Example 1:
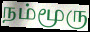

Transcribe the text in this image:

நம்மூரு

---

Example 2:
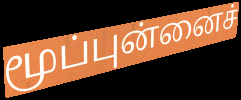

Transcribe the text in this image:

மூப்புன்னைச்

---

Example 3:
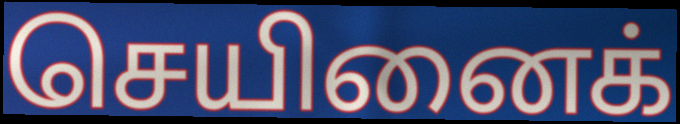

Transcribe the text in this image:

செயினைக்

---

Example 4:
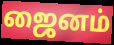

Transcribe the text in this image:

ஜைனம்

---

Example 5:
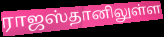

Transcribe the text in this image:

ராஜஸ்தானிலுள்ள